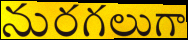
నురగలుగా